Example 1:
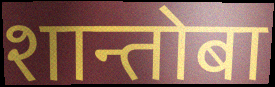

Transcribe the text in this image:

शान्तोबा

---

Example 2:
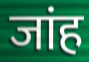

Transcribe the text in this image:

जांह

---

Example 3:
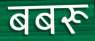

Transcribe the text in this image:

बबरू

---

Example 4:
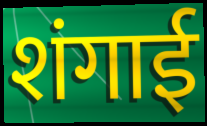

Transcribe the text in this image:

शंगाई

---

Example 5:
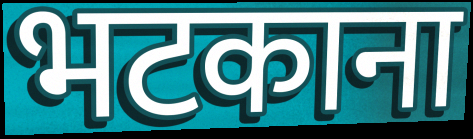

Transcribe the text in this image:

भटकाना